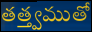
తత్త్వముతో